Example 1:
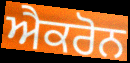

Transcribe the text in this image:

ਐਕਰੋਨ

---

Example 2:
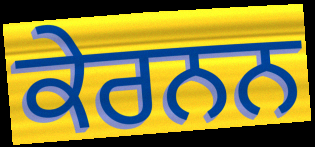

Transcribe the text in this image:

ਕੇਰਨਨ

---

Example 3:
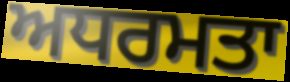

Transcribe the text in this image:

ਅਧਰਮਤਾ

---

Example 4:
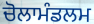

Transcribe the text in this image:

ਚੋਲਾਮੰਡਲਮ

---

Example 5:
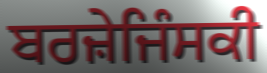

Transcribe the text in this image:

ਬਰਜ਼ੇਜਿੰਸਕੀ